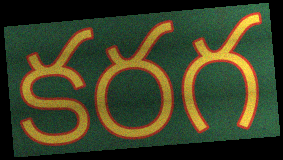
కరగ